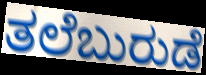
ತಲೆಬುರುಡೆ